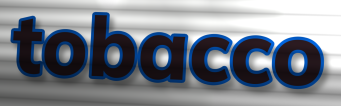
tobacco